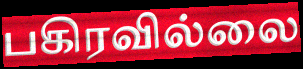
பகிரவில்லை